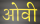
ओवी